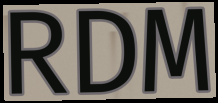
RDM